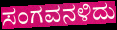
ಸಂಗವನಳಿದು